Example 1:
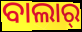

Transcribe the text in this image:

ବାଲାର୍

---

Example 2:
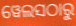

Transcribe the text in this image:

ୱେଲସଠାରୁ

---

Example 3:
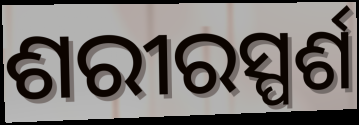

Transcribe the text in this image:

ଶରୀରସ୍ପର୍ଶ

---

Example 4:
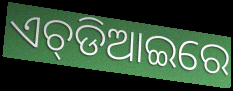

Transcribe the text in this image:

ଏଚ୍‌ଡିଆଇରେ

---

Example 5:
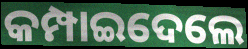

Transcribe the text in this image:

କମ୍ପାଇଦେଲେ